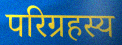
परिग्रहस्य